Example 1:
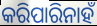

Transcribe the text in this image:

କରିପାରିନାହଁ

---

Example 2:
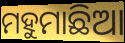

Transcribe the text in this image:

ମହୁମାଛିଆ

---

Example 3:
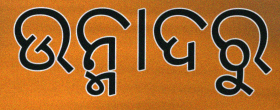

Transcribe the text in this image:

ଉନ୍ମାଦରୁ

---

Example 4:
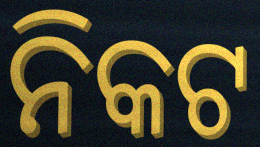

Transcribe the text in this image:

ନିକଟ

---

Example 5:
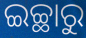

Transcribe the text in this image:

ଇଚ୍ଛାରୁ